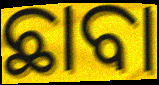
ଛାବା